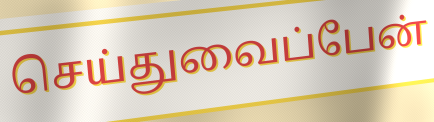
செய்துவைப்பேன்